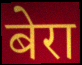
बेरा